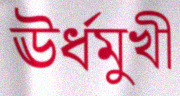
ঊৰ্ধমুখী